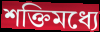
শক্তিমধ্যে